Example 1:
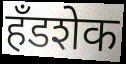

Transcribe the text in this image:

हँडशेक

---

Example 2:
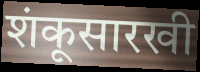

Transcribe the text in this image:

शंकूसारखी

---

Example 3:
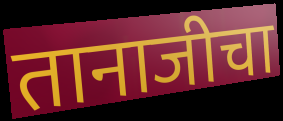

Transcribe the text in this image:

तानाजीचा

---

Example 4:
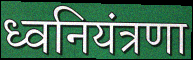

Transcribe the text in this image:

ध्वनियंत्रणा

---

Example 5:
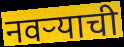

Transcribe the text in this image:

नवऱ्याची